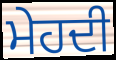
ਮੇਹਦੀ